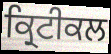
ਕ੍ਰਿਟੀਕਲ